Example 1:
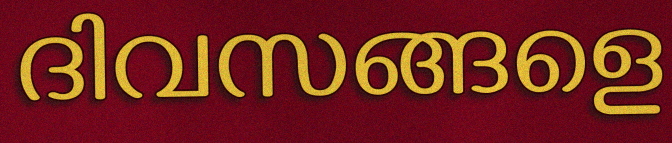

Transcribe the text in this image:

ദിവസങ്ങളെ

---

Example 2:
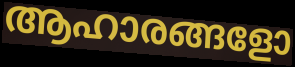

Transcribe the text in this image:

ആഹാരങ്ങളോ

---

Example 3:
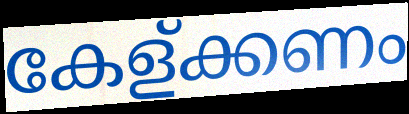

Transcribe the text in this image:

കേള്ക്കണം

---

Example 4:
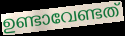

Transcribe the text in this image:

ഉണ്ടാവേണ്ടത്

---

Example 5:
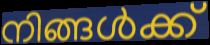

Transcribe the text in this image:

നിങ്ങൾക്ക്